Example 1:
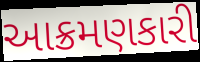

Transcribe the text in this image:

આક્રમણકારી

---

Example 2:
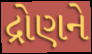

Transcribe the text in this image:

દ્રોણને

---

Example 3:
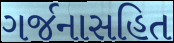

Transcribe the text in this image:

ગર્જનાસહિત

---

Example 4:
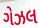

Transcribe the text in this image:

ગેઝલ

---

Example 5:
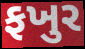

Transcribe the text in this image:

ફખુર